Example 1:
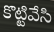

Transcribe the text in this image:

కొట్టివేసి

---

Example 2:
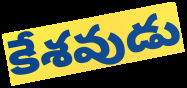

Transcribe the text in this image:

కేశవుడు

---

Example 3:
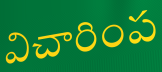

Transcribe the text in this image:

విచారింప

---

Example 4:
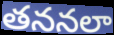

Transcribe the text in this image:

తననలా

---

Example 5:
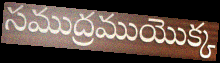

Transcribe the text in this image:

సముద్రముయొక్క